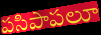
పసిపాపలూ